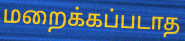
மறைக்கப்படாத